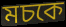
মচকে